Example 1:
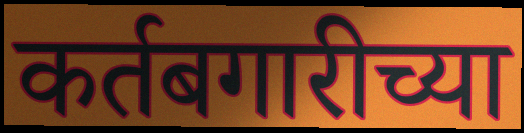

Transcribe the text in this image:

कर्तबगारीच्या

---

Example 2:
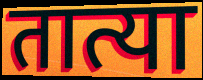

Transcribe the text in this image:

तात्या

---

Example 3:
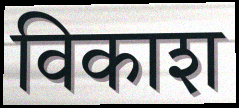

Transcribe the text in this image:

विकाश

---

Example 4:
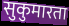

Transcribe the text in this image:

सुकुमारता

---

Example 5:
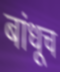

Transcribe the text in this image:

बांधूच